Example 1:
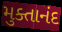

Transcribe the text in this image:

મુક્તાનંદ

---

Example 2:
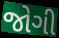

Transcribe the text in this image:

જોગી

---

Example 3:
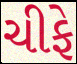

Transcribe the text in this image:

ચીફે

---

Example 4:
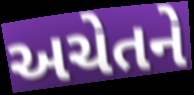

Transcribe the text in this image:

અચેતને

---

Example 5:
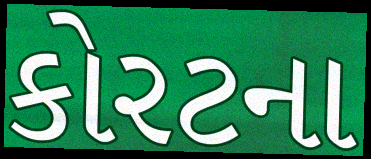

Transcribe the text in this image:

કોરટના